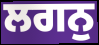
ਲਗਨੁ